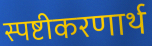
स्पष्टीकरणार्थ